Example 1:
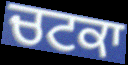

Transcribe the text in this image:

ਚਟਕਾ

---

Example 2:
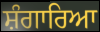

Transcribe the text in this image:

ਸ਼ੰਗਾਰਿਆ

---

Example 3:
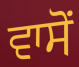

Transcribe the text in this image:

ਵਾਸੋਂ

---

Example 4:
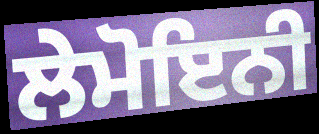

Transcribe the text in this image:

ਲੇਮੋਇਨੀ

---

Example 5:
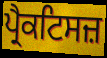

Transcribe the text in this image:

ਪ੍ਰੈਕਟਿਸਜ਼